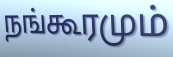
நங்கூரமும்